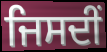
ਜਿਸਦੀਂ